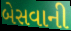
બેસવાની